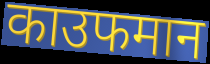
काउफमान